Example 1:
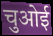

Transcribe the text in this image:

चुओई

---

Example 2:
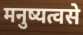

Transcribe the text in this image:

मनुष्यत्वसे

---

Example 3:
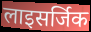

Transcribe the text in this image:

लाइसर्जिक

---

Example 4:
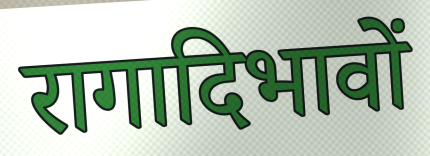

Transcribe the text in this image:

रागादिभावों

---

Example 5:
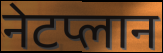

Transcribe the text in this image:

नेटप्लान